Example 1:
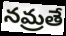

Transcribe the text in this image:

నమ్రతే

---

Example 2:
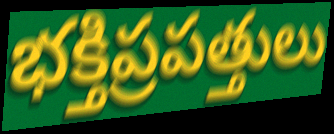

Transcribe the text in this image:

భక్తిప్రపత్తులు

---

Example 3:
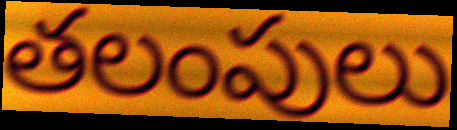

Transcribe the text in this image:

తలంపులు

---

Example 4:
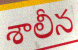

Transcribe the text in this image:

శాలీన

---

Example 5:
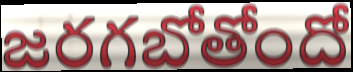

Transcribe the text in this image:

జరగబోతోందో